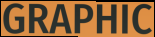
GRAPHIC